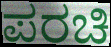
ಪರಚಿ